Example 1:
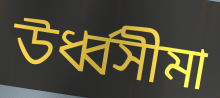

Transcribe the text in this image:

উর্ধ্বসীমা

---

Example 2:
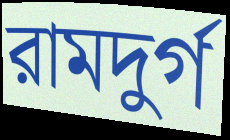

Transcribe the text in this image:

রামদুর্গ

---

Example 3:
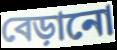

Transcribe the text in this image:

বেড়ানো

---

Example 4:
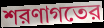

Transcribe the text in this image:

শরণাগতের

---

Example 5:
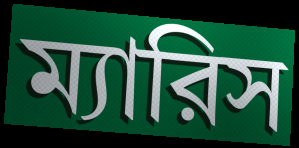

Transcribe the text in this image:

ম্যারিস